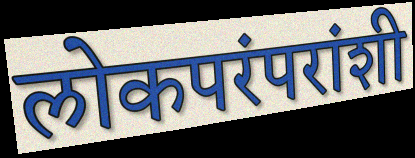
लोकपरंपरांशी